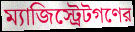
ম্যাজিস্ট্রেটগণের